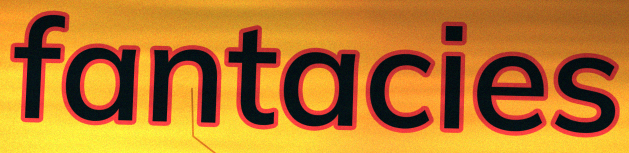
fantacies